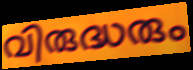
വിരുദ്ധരും